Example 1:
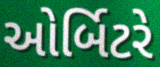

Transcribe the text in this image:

ઓર્બિટરે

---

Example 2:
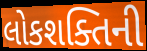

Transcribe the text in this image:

લોકશક્તિની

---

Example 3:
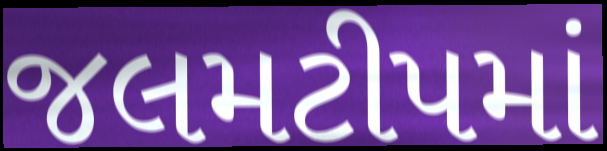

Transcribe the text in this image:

જલમટીપમાં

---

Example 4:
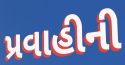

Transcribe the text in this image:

પ્રવાહીની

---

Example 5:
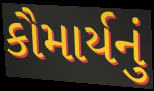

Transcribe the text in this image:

કૌમાર્યનું